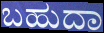
ಬಹುದಾ